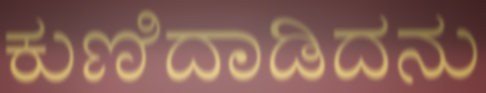
ಕುಣಿದಾಡಿದನು